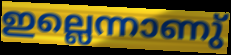
ഇല്ലെന്നാണു്